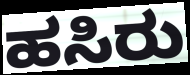
ಹಸಿರು